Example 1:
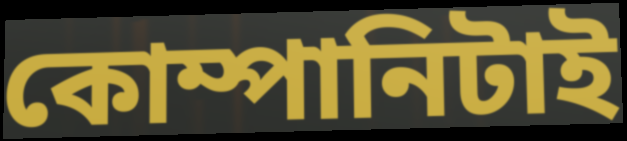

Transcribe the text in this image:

কোম্পানিটাই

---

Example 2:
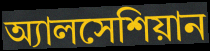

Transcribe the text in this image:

অ্যালসেশিয়ান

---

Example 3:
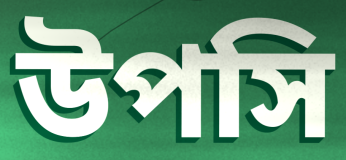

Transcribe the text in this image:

উপসি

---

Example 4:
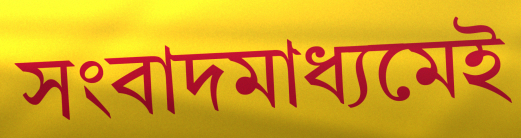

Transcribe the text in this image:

সংবাদমাধ্যমেই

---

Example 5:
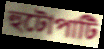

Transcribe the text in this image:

হুটোপাটি